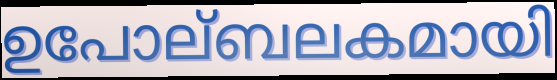
ഉപോല്ബലകമായി